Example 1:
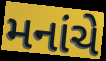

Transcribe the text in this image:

મનાંચે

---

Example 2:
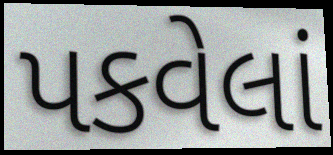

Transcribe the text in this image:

પકવેલાં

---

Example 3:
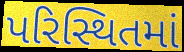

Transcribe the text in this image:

પરિસ્થિતમાં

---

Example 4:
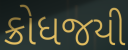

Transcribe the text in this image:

ક્રોધજયી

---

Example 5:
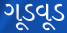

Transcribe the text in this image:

ગૂડવૂડ